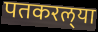
पतकरल्या